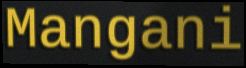
Mangani